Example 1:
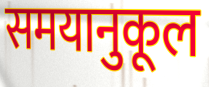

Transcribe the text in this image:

समयानुकूल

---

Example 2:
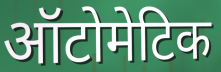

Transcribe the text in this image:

ऑटोमेटिक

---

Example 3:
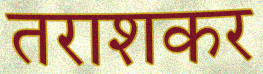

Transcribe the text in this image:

तराशकर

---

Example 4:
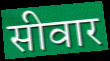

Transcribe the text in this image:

सीवार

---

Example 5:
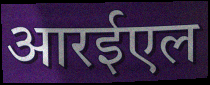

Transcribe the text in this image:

आरईएल